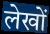
लेखों